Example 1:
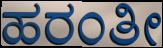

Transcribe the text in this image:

ಹರಂತೀ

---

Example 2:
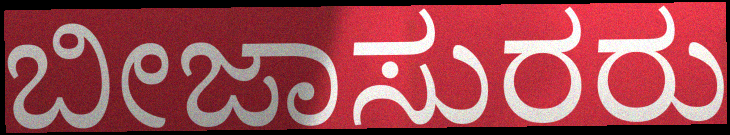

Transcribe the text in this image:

ಬೀಜಾಸುರರು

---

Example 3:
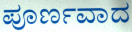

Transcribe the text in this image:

ಪೂರ್ಣವಾದ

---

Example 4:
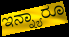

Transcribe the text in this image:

ಇನ್ನ್ಯಾರೂ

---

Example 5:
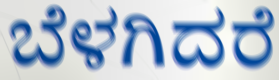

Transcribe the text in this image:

ಬೆಳಗಿದರೆ